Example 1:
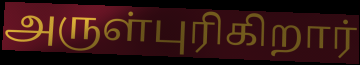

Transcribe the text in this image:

அருள்புரிகிறார்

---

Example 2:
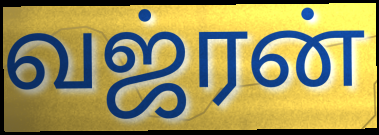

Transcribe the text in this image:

வஜ்ரன்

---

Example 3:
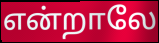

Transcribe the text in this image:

என்றாலே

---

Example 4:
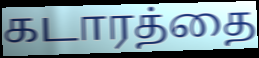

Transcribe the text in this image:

கடாரத்தை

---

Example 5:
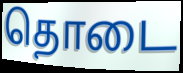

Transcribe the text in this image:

தொடை